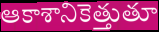
ఆకాశానికెత్తుతూ